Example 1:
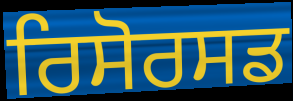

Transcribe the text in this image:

ਰਿਸੋਰਸਡ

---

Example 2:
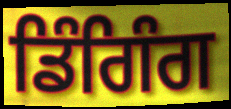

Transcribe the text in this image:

ਡਿੰਗਿੰਗ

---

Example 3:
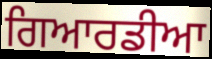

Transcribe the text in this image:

ਗਿਆਰਡੀਆ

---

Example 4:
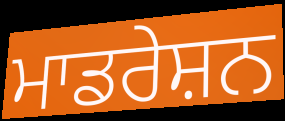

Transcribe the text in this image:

ਮਾਡਰੇਸ਼ਨ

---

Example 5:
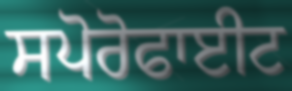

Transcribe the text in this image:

ਸਪੋਰੋਫਾਈਟ